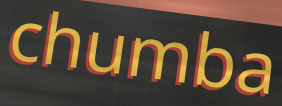
chumba